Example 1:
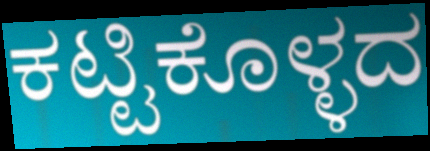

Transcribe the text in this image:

ಕಟ್ಟಿಕೊಳ್ಳದ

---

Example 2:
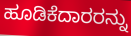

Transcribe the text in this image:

ಹೂಡಿಕೆದಾರರನ್ನು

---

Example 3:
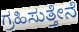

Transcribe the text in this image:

ಗ್ರಹಿಸುತ್ತೇನೆ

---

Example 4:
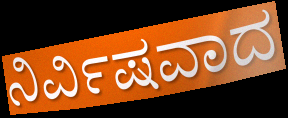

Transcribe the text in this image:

ನಿರ್ವಿಷವಾದ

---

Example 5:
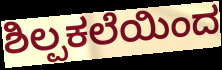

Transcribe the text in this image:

ಶಿಲ್ಪಕಲೆಯಿಂದ